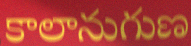
కాలానుగుణ